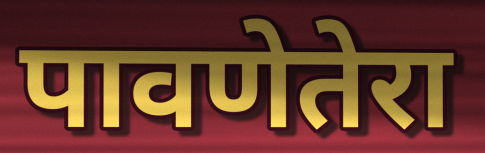
पावणेतेरा